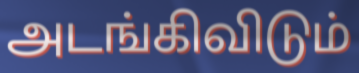
அடங்கிவிடும்